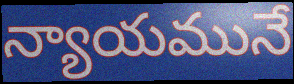
న్యాయమునే